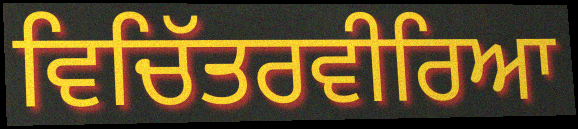
ਵਿਚਿੱਤਰਵੀਰਿਆ